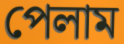
পেলাম